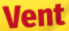
Vent